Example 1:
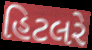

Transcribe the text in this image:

હિટલરે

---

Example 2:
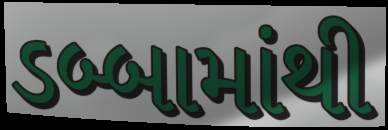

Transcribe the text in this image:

ડબ્બામાંથી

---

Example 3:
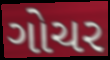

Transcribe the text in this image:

ગોચર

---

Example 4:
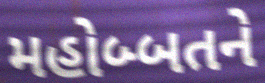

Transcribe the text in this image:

મહોબ્બતને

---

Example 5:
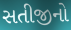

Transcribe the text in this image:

સતીજીનો